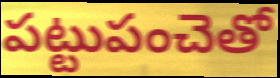
పట్టుపంచెతో